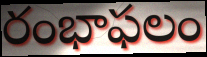
రంభాఫలం